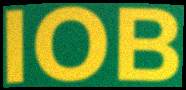
IOB